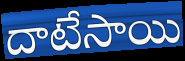
దాటేసాయి